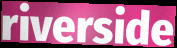
riverside